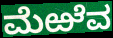
ಮೆಱೆವ